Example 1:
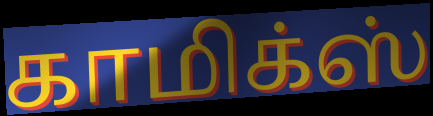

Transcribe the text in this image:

காமிக்ஸ்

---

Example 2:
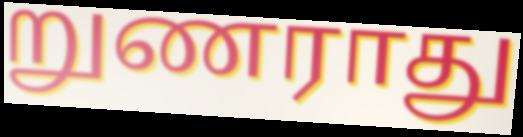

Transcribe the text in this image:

றுணராது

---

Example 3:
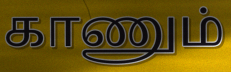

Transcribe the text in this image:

காணும்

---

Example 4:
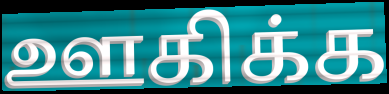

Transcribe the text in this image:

ஊகிக்க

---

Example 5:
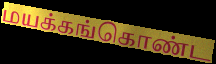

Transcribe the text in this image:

மயக்கங்கொண்ட